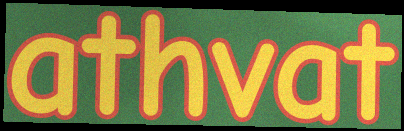
athvat